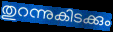
തുറന്നുകിടക്കും